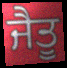
ਜੈਤੂ